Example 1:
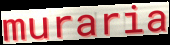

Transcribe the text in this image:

muraria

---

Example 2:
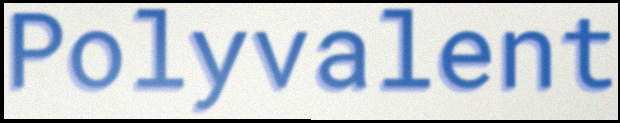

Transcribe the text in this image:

Polyvalent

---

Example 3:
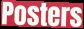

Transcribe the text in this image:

Posters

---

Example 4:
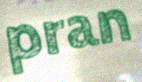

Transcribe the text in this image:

pran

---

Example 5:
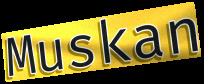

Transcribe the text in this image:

Muskan